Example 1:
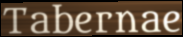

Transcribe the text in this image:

Tabernae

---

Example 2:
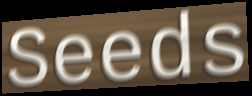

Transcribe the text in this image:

Seeds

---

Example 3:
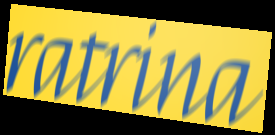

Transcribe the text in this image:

ratrina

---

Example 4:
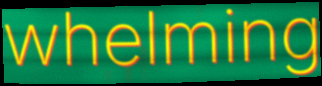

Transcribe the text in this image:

whelming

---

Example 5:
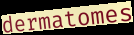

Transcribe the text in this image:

dermatomes